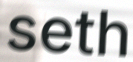
seth